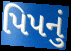
પિપનું